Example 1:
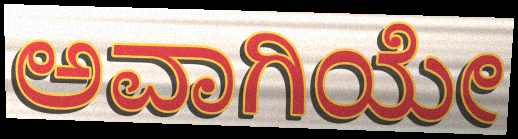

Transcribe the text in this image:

ಅವಾಗಿಯೇ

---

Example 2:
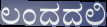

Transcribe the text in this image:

ಲಂದದಲಿ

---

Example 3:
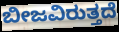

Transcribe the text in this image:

ಬೀಜವಿರುತ್ತದೆ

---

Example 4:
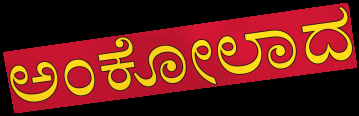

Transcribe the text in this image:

ಅಂಕೋಲಾದ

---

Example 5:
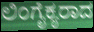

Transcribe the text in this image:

ಲಿಂಗೈಕ್ಯರಾದ